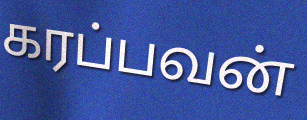
கரப்பவன்